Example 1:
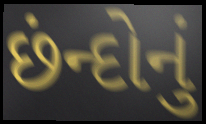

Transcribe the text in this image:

છંન્દોનું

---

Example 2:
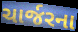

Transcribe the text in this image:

ચાર્જરના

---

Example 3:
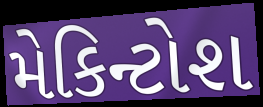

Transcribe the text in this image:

મેકિન્ટોશ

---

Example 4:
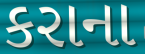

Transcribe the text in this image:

કરાના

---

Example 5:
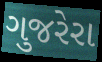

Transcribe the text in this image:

ગુજરેરા